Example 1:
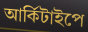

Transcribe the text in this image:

আর্কিটাইপে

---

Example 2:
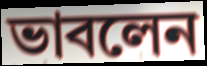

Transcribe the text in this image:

ভাবলেন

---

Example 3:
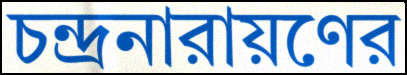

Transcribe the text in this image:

চন্দ্রনারায়ণের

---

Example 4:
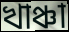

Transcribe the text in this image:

খাঞ্চা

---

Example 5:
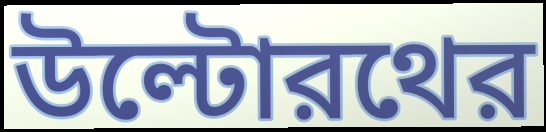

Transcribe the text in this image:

উল্টোরথের